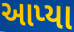
આપ્યા